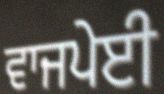
ਵਾਜਪੇਈ